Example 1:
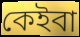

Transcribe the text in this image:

কেইবা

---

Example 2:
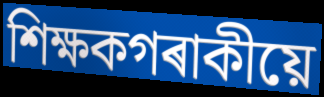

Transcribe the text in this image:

শিক্ষকগৰাকীয়ে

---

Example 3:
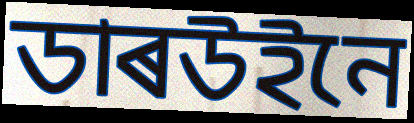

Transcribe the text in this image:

ডাৰউইনে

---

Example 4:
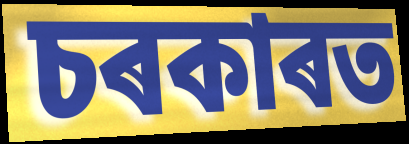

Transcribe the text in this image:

চৰকাৰত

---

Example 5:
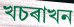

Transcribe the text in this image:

খচৰাখন